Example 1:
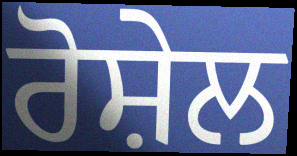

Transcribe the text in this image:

ਰੋਸ਼ੇਲ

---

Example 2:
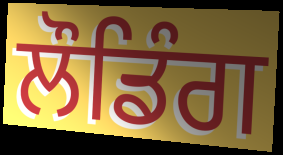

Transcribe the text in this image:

ਲੌਡਿੰਗ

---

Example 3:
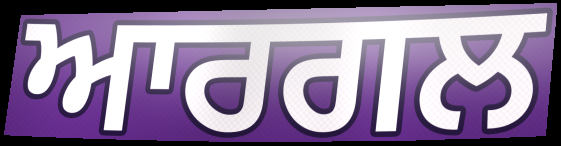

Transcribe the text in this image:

ਆਰਗਲ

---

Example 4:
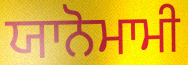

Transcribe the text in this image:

ਯਾਨੋਮਾਮੀ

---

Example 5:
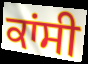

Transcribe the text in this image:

ਕਾਂਸੀ